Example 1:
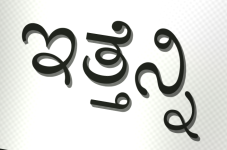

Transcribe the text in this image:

ಇತ್ತೆನ್ನಿ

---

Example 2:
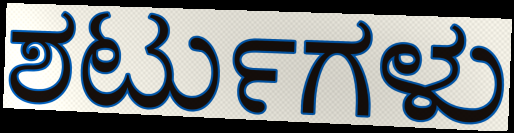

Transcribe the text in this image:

ಶರ್ಟುಗಳು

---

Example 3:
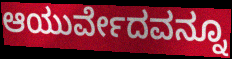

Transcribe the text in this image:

ಆಯುರ್ವೇದವನ್ನೂ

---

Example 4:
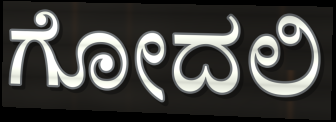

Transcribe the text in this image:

ಗೋದಲಿ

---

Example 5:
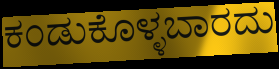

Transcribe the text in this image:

ಕಂಡುಕೊಳ್ಳಬಾರದು